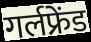
गर्लफ्रेंड